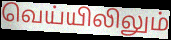
வெய்யிலிலும்